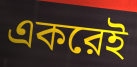
একরেই